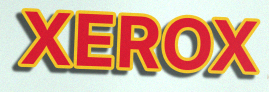
XEROX